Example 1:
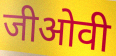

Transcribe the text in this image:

जीओवी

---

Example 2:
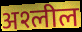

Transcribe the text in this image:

अश्लील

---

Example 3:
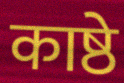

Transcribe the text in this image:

काष्ठे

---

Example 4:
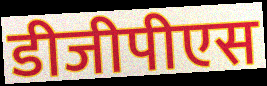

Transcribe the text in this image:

डीजीपीएस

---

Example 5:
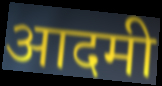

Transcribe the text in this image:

आदमी